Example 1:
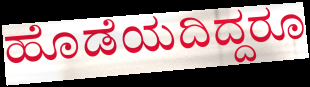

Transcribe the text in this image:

ಹೊಡೆಯದಿದ್ದರೂ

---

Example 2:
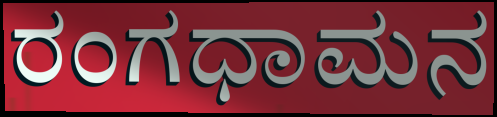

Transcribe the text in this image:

ರಂಗಧಾಮನ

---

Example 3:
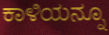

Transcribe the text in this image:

ಕಾಳಿಯನ್ನೂ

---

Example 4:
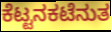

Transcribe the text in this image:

ಕೆಟ್ಟನಕಟೆನುತ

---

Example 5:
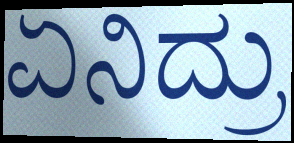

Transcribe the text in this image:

ಏನಿದ್ರು